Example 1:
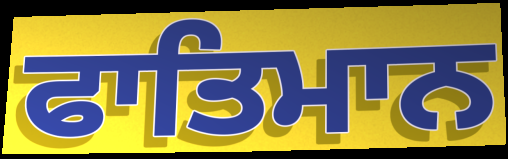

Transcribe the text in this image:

ਫਾਤਿਮਾਨ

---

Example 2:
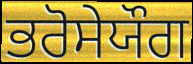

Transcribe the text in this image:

ਭਰੋਸੇਯੌਗ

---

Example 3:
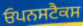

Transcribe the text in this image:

ਓਪਨਸਟੈਕਸ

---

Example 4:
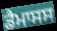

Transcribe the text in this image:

ਡੈਮਾਸਸ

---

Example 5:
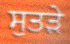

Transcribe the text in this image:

ਸੁਤੜੇ